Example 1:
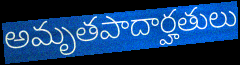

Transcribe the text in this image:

అమృతపాదార్హతులు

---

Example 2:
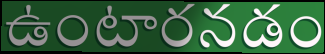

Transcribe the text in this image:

ఉంటారనడం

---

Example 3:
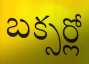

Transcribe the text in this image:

బక్సర్లో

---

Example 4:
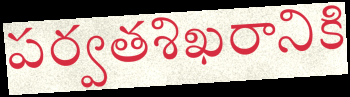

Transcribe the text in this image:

పర్వతశిఖరానికి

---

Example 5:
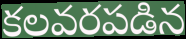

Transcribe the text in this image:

కలవరపడిన